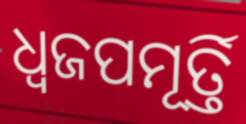
ଧ୍ୱଜପମୂର୍ତ୍ତି